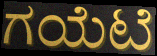
ಗಯೆಟೆ